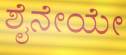
ಶೈನೇಯೇ